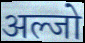
अल्जो